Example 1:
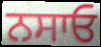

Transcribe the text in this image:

ਨਸਾਓ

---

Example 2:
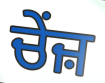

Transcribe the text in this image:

ਚੇਂਜ਼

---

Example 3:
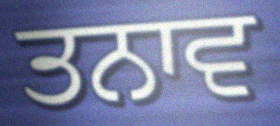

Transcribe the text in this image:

ਤਨਾਵ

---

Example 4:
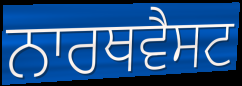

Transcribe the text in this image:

ਨਾਰਥਵੈਸਟ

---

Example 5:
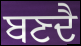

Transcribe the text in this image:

ਬਣਦੈ